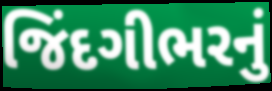
જિંદગીભરનું